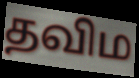
தவிம